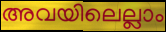
അവയിലെല്ലാം